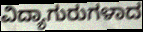
ವಿದ್ಯಾಗುರುಗಳಾದ